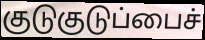
குடுகுடுப்பைச்